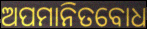
ଅପମାନିତବୋଧ